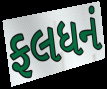
ફલધનં